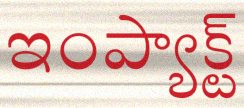
ఇంప్యాక్ట్